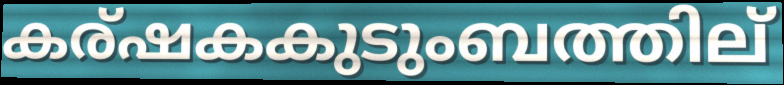
കര്ഷകകുടുംബത്തില്